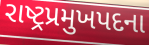
રાષ્ટ્રપ્રમુખપદના